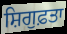
ਸ਼ਿਗੁਫ਼ਤਾ